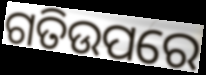
ଗତିଉପରେ